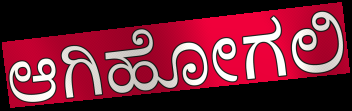
ಆಗಿಹೋಗಲಿ